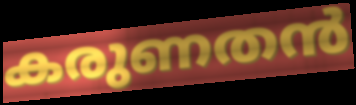
കരുണതൻ